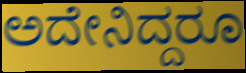
ಅದೇನಿದ್ದರೂ